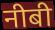
नीबी